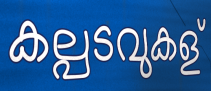
കല്പടവുകള്